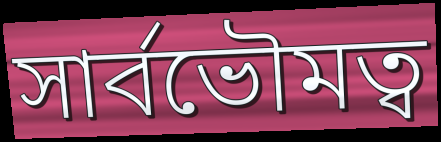
সাৰ্বভৌমত্ব